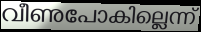
വീണുപോകില്ലെന്ന്